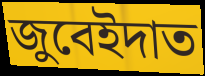
জুবেইদাত